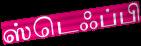
ஸ்டெஃப்பி